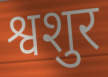
श्वशुर